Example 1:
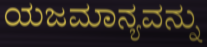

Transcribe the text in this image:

ಯಜಮಾನ್ಯವನ್ನು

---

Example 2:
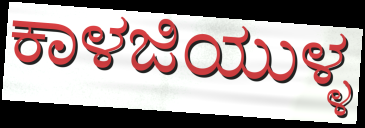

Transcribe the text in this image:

ಕಾಳಜಿಯುಳ್ಳ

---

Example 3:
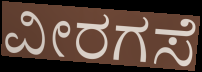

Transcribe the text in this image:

ವೀರಗಸೆ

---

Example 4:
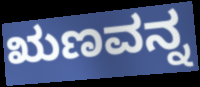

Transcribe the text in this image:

ಋಣವನ್ನ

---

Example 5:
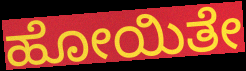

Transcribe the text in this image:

ಹೋಯಿತೇ